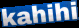
kahihi